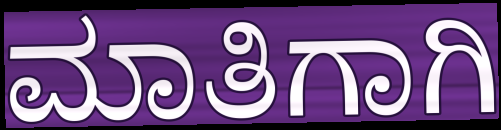
ಮಾತಿಗಾಗಿ